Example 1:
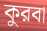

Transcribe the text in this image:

কুরবা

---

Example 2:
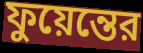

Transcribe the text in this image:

ফুয়েন্তের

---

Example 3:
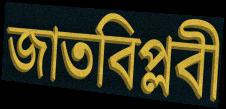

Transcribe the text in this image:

জাতবিপ্লবী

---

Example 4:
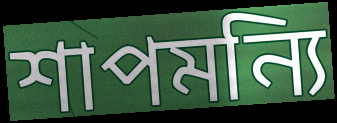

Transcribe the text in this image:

শাপমন্যি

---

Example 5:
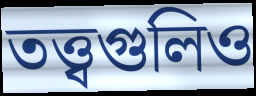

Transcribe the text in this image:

তত্ত্বগুলিও